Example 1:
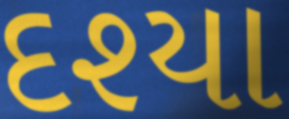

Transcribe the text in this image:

દશ્યા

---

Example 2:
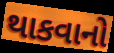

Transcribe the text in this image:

થાકવાનો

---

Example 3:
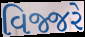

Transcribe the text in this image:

વિજ્જરે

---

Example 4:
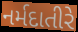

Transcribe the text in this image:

નર્મદાતીરે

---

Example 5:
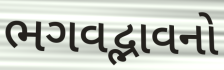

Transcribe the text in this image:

ભગવદ્ભાવનો